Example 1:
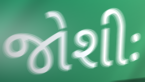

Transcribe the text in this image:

જોશીઃ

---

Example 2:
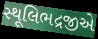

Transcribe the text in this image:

સ્થૂલિભદ્રજીએ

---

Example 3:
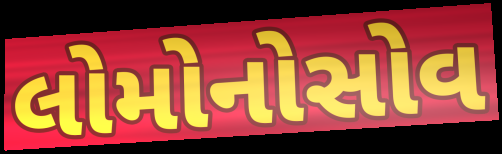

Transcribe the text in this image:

લોમોનોસોવ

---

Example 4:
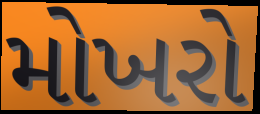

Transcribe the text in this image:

મોખરો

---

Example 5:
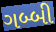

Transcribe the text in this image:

ગબ્બી